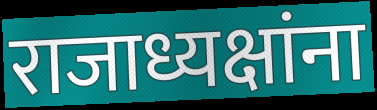
राजाध्यक्षांना